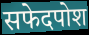
सफेदपोश